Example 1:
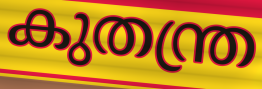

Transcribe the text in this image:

കുതന്ത്ര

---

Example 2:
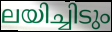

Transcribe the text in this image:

ലയിച്ചിടും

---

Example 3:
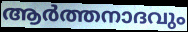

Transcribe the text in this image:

ആർത്തനാദവും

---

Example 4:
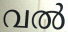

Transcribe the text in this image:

വൽ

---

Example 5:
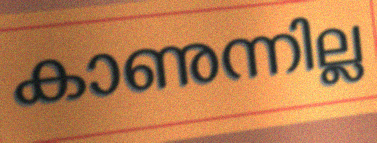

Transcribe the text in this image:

കാണുന്നില്ല